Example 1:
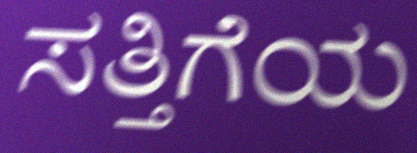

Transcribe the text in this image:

ಸತ್ತಿಗೆಯ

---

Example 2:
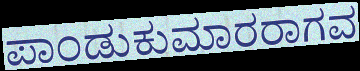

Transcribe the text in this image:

ಪಾಂಡುಕುಮಾರರಾಗವ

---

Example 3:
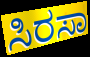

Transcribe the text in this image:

ಸಿರಸಾ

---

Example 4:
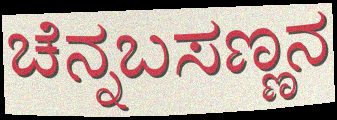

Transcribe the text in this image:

ಚೆನ್ನಬಸಣ್ಣನ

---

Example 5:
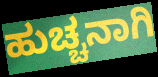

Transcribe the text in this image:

ಹುಚ್ಚನಾಗಿ